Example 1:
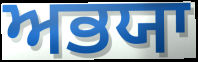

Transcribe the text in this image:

ਅਭਯਾ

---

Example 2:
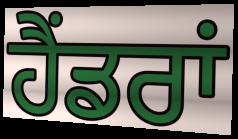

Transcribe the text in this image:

ਹੈਂਡਰਾਂ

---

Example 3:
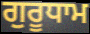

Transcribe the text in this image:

ਗੁਰੂਧਾਮ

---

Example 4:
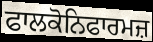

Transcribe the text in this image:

ਫਾਲਕੋਨਿਫਾਰਮਜ਼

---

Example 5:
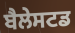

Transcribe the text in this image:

ਬੈਲੇਸਟਡ